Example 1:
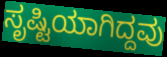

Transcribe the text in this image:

ಸೃಷ್ಟಿಯಾಗಿದ್ದವು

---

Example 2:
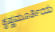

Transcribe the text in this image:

ಕೃಷ್ಣಮೂರ್ತಿಯ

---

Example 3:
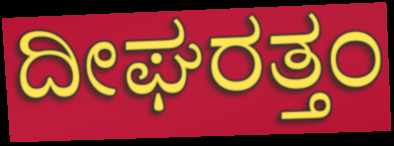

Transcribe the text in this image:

ದೀಘರತ್ತಂ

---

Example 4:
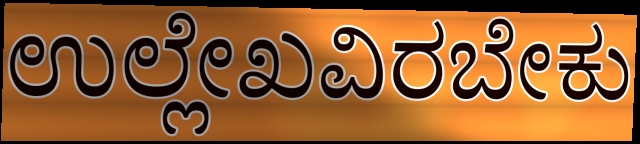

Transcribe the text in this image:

ಉಲ್ಲೇಖವಿರಬೇಕು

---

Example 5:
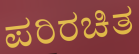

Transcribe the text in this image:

ಪರಿರಚಿತ